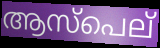
ആസ്പെല്